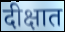
दीक्षात